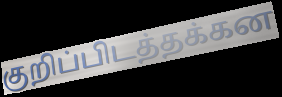
குறிப்பிடத்தக்கன